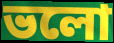
ভলো